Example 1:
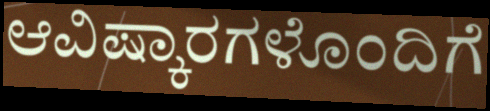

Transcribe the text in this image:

ಆವಿಷ್ಕಾರಗಳೊಂದಿಗೆ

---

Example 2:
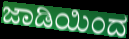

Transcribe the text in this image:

ಜಾಡಿಯಿಂದ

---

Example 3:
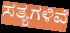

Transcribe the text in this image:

ಸತ್ಯಗಳಿವೆ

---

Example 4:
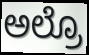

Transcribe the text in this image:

ಅಲ್ರೊ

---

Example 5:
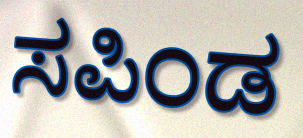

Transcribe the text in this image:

ಸಪಿಂಡ